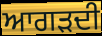
ਆਗੜਦੀ